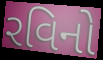
રવિનો